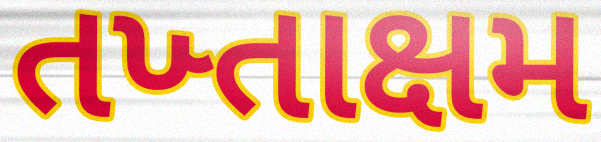
તખ્તાક્ષમ